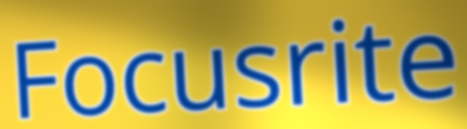
Focusrite